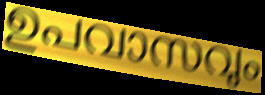
ഉപവാസവും